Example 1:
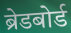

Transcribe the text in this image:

ब्रेडबोर्ड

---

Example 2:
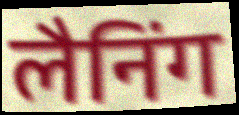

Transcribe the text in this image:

लैनिंग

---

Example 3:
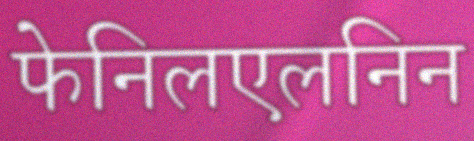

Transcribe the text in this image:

फेनिलएलनिन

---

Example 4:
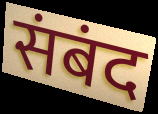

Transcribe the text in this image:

संबंद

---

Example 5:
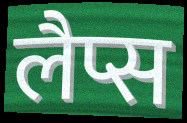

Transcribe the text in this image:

लैप्स